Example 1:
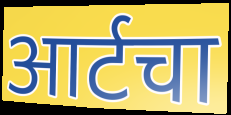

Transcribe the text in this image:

आर्टचा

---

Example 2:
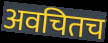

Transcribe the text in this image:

अवचितच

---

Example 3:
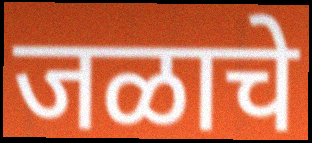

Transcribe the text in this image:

जळाचे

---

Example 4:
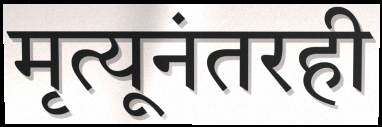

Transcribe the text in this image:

मृत्यूनंतरही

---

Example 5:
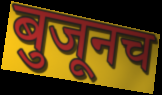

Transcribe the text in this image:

बुजूनच